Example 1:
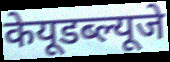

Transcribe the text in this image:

केयूडब्ल्यूजे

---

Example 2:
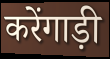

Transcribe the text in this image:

करेंगाड़ी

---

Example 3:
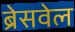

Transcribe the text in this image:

ब्रेसवेल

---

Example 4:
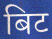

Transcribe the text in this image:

बिट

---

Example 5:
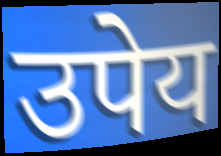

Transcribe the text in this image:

उपेय